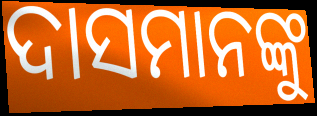
ଦାସମାନଙ୍କୁ